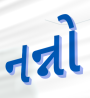
નન્નો